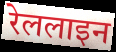
रेललाइन